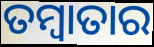
ତମ୍ବାତାର